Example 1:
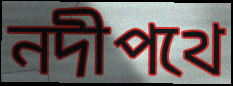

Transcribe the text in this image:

নদীপথে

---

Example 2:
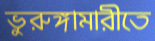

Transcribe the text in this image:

ভুরুঙ্গামারীতে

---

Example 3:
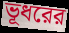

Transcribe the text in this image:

ভূধরের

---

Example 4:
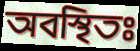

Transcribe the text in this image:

অবস্থিতঃ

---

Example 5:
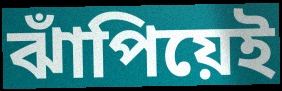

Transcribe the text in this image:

ঝাঁপিয়েই